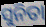
ସୁନିତା